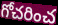
గోచరించ